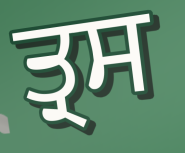
ਤ੍ਰਸ